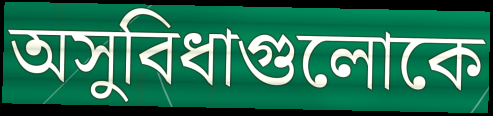
অসুবিধাগুলোকে